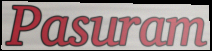
Pasuram